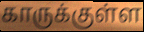
காருக்குள்ள